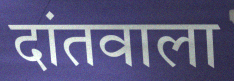
दांतवाला